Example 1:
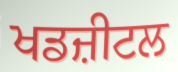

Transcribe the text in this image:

ਖਡਜ਼ੀਟਲ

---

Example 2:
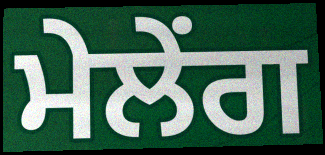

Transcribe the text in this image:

ਮੇਲੇਂਗ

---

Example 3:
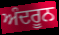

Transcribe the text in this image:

ਅੰਦਰੂਨ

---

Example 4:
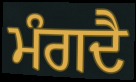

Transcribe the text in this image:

ਮੰਗਦੈ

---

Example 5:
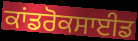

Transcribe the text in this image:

ਕਾਂਡਰੋਕਸਾਈਡ